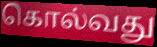
கொல்வது